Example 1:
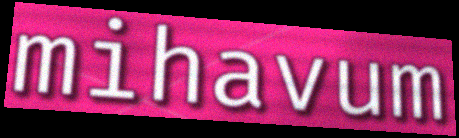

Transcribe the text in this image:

mihavum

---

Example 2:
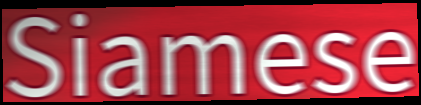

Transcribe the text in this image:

Siamese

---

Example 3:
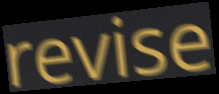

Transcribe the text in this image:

revise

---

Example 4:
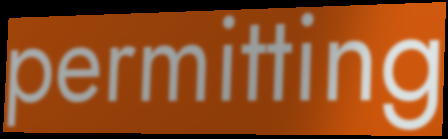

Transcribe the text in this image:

permitting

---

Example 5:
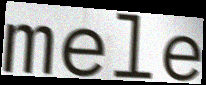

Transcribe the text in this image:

mele